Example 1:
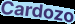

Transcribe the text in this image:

Cardozo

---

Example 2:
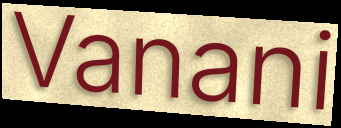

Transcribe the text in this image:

Vanani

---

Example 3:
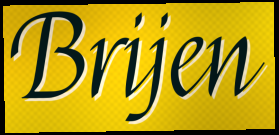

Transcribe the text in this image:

Brijen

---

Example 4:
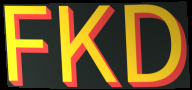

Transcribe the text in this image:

FKD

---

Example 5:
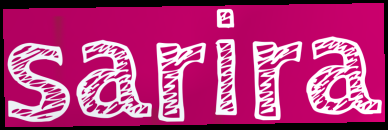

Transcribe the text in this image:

sarira